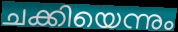
ചക്കിയെന്നും